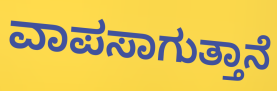
ವಾಪಸಾಗುತ್ತಾನೆ